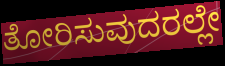
ತೋರಿಸುವುದರಲ್ಲೇ